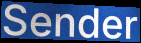
Sender